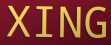
XING